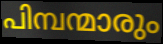
പിമ്പന്മാരും